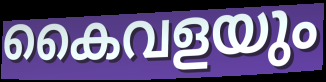
കൈവളയും